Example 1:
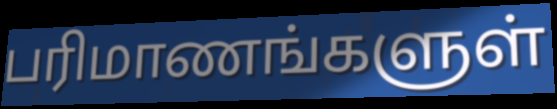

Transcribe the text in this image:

பரிமாணங்களுள்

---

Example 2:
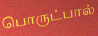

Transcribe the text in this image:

பொருட்பால்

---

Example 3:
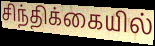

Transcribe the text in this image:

சிந்திக்கையில்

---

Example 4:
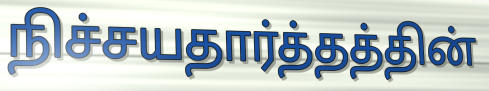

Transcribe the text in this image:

நிச்சயதார்த்தத்தின்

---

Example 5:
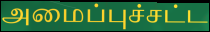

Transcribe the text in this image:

அமைப்புச்சட்ட